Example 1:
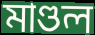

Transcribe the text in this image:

মাণ্ডল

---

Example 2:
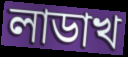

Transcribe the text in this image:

লাডাখ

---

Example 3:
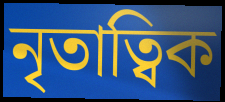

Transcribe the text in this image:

নৃতাত্বিক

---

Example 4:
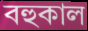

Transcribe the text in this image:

বহুকাল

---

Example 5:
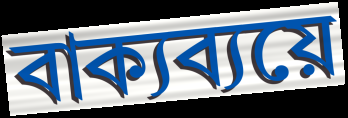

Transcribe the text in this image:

বাক্যব্যয়ে